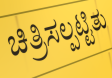
ಚಿತ್ರಿಸಲ್ಪಟ್ಟಿತು